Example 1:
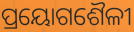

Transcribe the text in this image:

ପ୍ରୟୋଗଶୈଳୀ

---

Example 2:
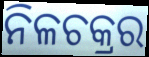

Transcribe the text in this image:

ନିଳଚକ୍ରର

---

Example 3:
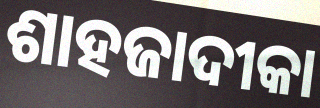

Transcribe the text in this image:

ଶାହଜାଦୀକା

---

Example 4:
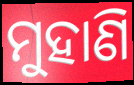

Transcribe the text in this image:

ମୁହାଣି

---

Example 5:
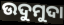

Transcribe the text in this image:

ଉଦୁମୁଦା